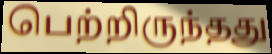
பெற்றிருந்தது